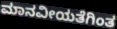
ಮಾನವೀಯತೆಗಿಂತ